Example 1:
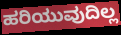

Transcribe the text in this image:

ಹರಿಯುವುದಿಲ್ಲ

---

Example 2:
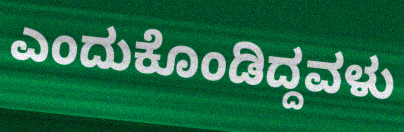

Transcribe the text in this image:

ಎಂದುಕೊಂಡಿದ್ದವಳು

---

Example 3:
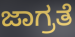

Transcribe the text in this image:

ಜಾಗ್ರತೆ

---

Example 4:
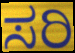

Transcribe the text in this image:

ಸರಿ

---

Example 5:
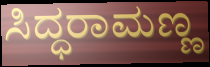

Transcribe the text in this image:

ಸಿದ್ಧರಾಮಣ್ಣ